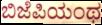
ಬಿಜೆಪಿಯಂಥ